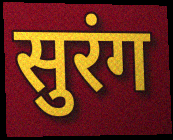
सुरंग